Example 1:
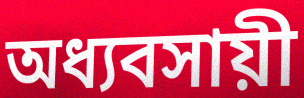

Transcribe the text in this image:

অধ্যবসায়ী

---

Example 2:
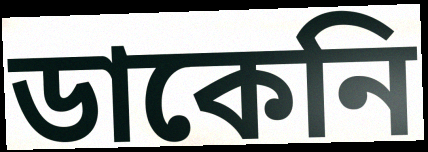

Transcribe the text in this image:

ডাকেনি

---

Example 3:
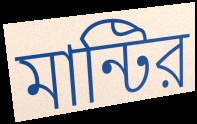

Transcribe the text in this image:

মান্টির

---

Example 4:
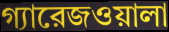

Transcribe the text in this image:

গ্যারেজওয়ালা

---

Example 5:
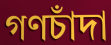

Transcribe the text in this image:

গণচাঁদা